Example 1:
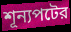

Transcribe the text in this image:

শূন্যপটের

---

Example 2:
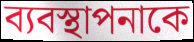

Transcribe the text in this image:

ব্যবস্থাপনাকে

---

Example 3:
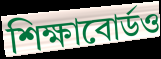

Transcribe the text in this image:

শিক্ষাবোর্ডও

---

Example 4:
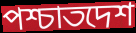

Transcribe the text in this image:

পশ্চাতদেশ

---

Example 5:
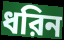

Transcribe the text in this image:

ধরিন